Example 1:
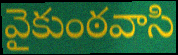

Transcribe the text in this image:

వైకుంఠవాసి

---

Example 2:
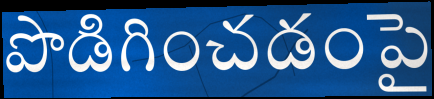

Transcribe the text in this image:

పొడిగించడంపై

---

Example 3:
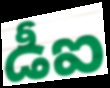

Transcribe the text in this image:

డీఐ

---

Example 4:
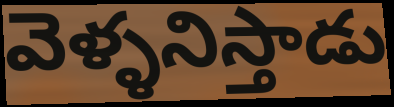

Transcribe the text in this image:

వెళ్ళనిస్తాడు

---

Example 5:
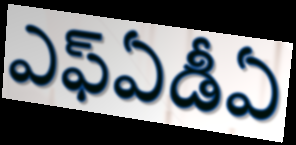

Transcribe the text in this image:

ఎఫ్ఏడీఏ